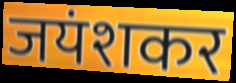
जयंशकर